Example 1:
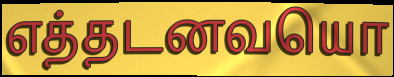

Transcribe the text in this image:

எத்தடனவயொ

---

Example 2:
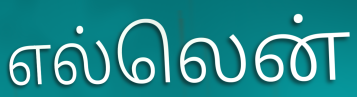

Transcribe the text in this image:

எல்லென்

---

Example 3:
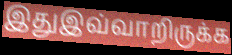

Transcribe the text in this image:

இதுஇவ்வாறிருக்க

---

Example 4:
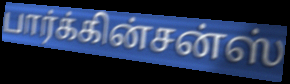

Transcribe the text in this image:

பார்க்கின்சன்ஸ்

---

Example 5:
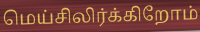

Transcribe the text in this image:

மெய்சிலிர்க்கிறோம்